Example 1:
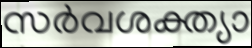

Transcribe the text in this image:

സർവശക്ത്യാ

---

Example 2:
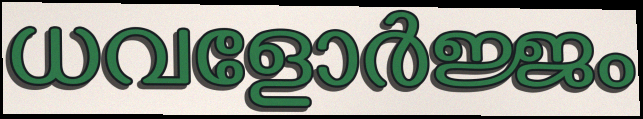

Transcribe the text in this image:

ധവളോർജ്ജം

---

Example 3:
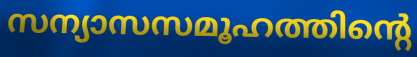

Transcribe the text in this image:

സന്യാസസമൂഹത്തിന്റെ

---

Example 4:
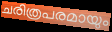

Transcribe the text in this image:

ചരിത്രപരമായും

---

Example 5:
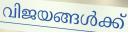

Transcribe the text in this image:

വിജയങ്ങൾക്ക്